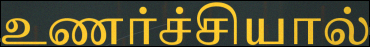
உணர்ச்சியால்